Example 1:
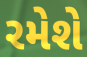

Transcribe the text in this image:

રમેશે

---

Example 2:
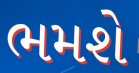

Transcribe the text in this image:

ભમશે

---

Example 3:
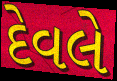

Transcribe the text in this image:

દેવલે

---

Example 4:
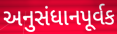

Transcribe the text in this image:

અનુસંધાનપૂર્વક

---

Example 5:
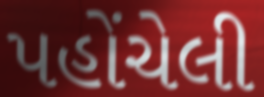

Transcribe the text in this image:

પહોંચેલી